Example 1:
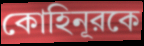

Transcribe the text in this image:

কোহিনূরকে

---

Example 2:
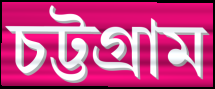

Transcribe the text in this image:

চট্টগ্রাম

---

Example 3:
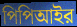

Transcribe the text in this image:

পিপিআইর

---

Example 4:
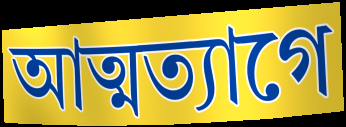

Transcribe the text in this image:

আত্মত্যাগে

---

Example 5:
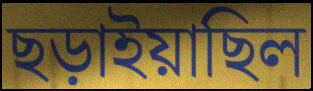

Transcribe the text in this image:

ছড়াইয়াছিল